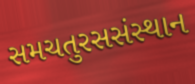
સમચતુરસસંસ્થાન